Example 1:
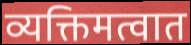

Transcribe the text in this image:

व्यक्तिमत्वात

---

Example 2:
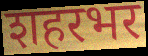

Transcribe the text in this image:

शहरभर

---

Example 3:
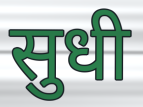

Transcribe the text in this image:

सुधी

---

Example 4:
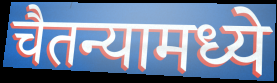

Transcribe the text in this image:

चैतन्यामध्ये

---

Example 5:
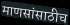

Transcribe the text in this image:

माणसांसाठीच